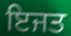
ਇਜਤ